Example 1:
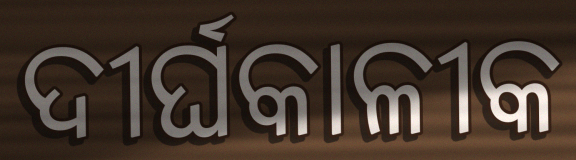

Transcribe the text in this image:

ଦୀର୍ଘକାଳୀକ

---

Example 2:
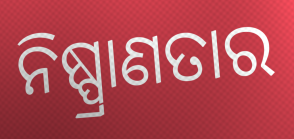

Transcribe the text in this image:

ନିଷ୍ପ୍ରାଣତାର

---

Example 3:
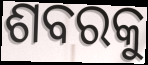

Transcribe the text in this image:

ଶବରକୁ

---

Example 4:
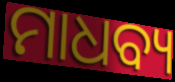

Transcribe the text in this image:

ମାଧବ୍ୟ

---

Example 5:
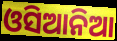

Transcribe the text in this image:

ଓସିଆନିଆ